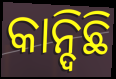
କାନ୍ଦିଛି